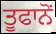
ਤੂਫਾਨੋਂ